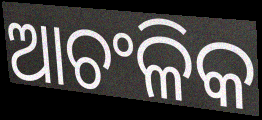
ଆଚଂଳିକ